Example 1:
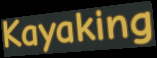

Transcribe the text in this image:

Kayaking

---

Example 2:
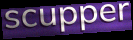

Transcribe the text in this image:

scupper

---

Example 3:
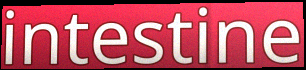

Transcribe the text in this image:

intestine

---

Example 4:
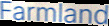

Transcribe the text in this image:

Farmland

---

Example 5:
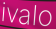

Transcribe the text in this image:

ivalo